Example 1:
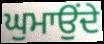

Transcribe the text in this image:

ਘੁਮਾਉਂਦੇ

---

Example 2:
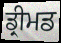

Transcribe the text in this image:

ਡ੍ਰੀਮਡ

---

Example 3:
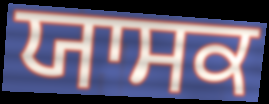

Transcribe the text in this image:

ਯਾਸਕ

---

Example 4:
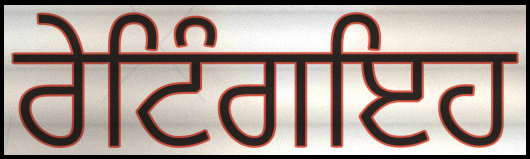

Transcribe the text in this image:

ਰੇਟਿੰਗਇਹ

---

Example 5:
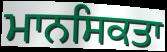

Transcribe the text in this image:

ਮਾਨਸਿਕਤਾ